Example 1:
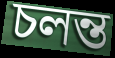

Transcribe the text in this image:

চলন্ত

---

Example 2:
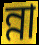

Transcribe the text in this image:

ন্না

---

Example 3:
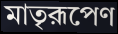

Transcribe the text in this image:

মাতৃরূপেণ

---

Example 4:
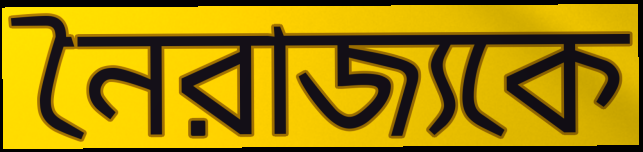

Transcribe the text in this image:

নৈরাজ্যকে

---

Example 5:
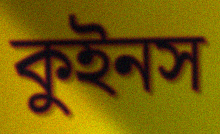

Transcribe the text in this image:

কুইনস